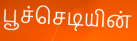
பூச்செடியின்